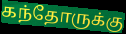
கந்தோருக்கு